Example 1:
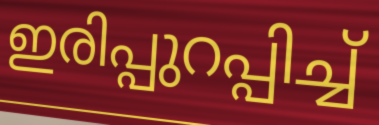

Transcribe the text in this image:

ഇരിപ്പുറപ്പിച്ച്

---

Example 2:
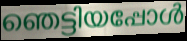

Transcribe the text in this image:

ഞെട്ടിയപ്പോൾ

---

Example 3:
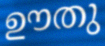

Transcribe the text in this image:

ഊതു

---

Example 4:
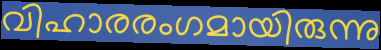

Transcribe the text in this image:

വിഹാരരംഗമായിരുന്നു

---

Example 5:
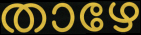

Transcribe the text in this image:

താഴേ